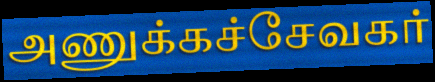
அணுக்கச்சேவகர்